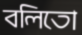
বলিতো